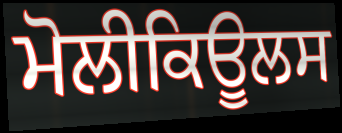
ਮੋਲੀਕਿਊਲਸ